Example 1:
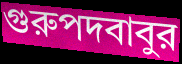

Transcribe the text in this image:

গুরুপদবাবুর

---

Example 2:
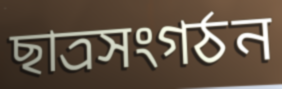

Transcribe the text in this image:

ছাত্রসংগঠন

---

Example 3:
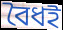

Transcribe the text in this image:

বৈধই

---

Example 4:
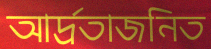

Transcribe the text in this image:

আর্দ্রতাজনিত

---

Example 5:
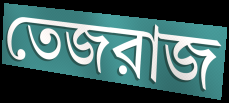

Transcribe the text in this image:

তেজরাজ